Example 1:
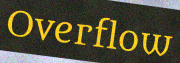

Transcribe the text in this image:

Overflow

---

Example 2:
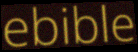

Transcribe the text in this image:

ebible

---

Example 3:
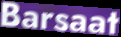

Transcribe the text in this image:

Barsaat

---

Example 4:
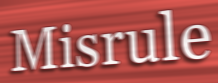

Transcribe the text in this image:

Misrule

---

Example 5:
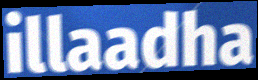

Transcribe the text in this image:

illaadha